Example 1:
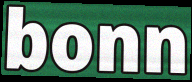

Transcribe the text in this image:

bonn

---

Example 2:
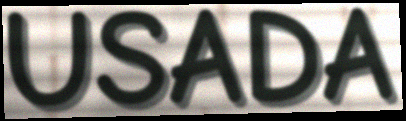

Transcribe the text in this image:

USADA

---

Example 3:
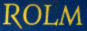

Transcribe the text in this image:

ROLM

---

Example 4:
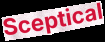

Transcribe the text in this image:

Sceptical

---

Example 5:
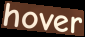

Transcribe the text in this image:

hover